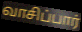
வாசிப்பார்